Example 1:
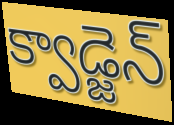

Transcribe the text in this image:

క్వాడ్జెన్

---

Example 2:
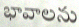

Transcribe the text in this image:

భావాలను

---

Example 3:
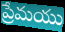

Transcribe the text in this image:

ప్రేమయు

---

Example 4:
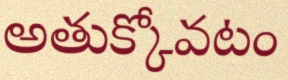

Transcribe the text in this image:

అతుక్కోవటం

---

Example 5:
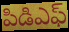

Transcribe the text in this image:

పిడిఎఫ్